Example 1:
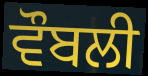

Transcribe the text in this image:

ਵੌਬਲੀ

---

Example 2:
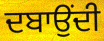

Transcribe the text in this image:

ਦਬਾਉਂਦੀ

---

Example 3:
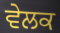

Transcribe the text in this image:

ਵੇਲਕ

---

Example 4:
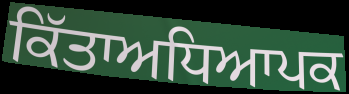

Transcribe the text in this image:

ਕਿੱਤਾਅਧਿਆਪਕ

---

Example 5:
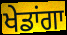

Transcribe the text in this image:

ਖੇਡਾਂਗਾ